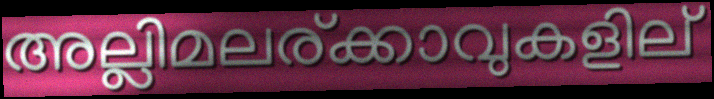
അല്ലിമലര്ക്കാവുകളില്